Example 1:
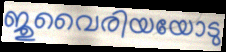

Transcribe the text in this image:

ജുവൈരിയയോടു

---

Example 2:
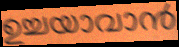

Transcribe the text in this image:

ഉച്ചയാവാൻ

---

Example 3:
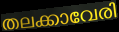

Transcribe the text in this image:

തലക്കാവേരി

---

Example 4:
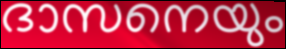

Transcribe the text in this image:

ദാസനെയും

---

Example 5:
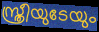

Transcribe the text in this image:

സ്ത്രീയുടേയും